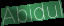
Abidul